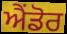
ਐਂਡੋਰ